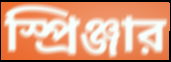
স্প্রিঞ্জার